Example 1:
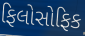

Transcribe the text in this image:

ફિલોસોફિક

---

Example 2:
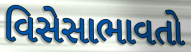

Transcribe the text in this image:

વિસેસાભાવતો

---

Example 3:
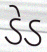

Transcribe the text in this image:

ડેડ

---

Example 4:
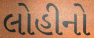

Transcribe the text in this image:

લોહીનો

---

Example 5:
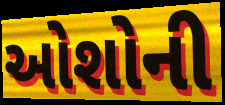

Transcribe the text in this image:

ઓશોની